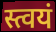
स्त्वयं